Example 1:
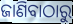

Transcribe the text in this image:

ଜାଣିବାଠାରୁ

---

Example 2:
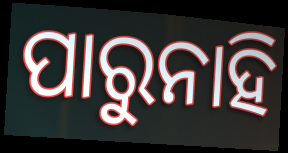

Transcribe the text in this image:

ପାରୁନାହି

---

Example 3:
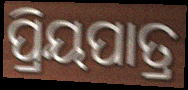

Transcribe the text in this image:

ପ୍ରିୟପାତ୍ର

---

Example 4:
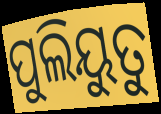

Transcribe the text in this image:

ପୁଲିୟୁତୁ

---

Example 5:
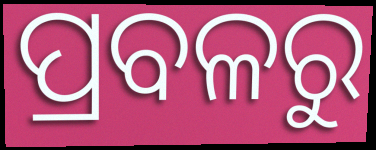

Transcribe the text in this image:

ପ୍ରବଳରୁ